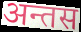
अन्तस